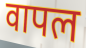
वापल